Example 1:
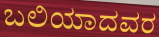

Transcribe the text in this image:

ಬಲಿಯಾದವರ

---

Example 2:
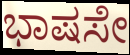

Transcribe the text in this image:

ಭಾಷಸೇ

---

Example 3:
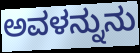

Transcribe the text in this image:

ಅವಳನ್ನುನು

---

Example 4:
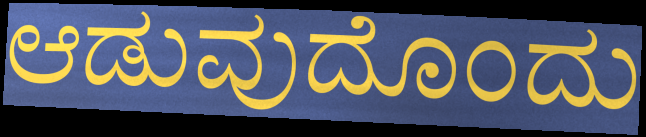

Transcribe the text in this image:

ಆಡುವುದೊಂದು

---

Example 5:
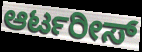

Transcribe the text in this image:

ಆರ್ಟರೀಸ್